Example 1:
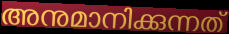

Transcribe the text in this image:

അനുമാനിക്കുന്നത്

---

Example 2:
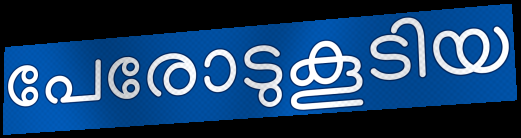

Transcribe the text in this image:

പേരോടുകൂടിയ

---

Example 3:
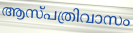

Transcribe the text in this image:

ആസ്പത്രിവാസം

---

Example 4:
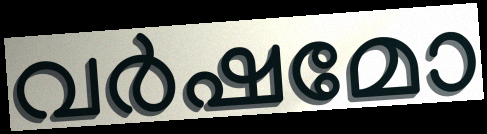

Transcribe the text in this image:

വർഷമോ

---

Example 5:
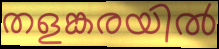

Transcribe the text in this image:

തളങ്കരയിൽ